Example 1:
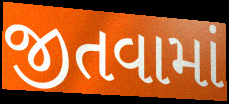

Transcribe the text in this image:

જીતવામાં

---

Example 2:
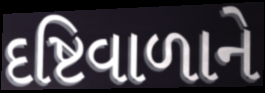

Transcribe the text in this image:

દષ્ટિવાળાને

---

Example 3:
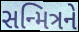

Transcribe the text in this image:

સન્મિત્રને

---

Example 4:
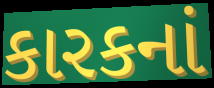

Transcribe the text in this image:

કારકનાં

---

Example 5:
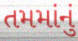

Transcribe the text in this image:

તમમાંનું